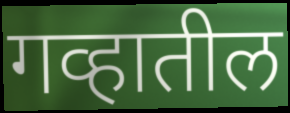
गव्हातील